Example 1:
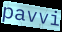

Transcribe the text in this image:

pavvi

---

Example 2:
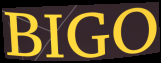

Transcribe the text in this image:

BIGO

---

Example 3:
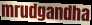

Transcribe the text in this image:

mrudgandha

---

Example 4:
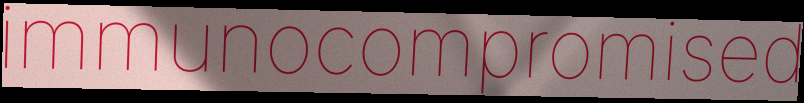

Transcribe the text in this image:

immunocompromised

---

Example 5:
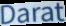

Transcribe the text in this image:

Darat